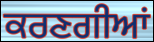
ਕਰਣਗੀਆਂ